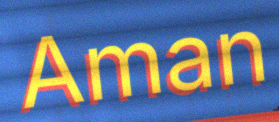
Aman